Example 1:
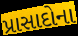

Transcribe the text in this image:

પ્રાસાદોના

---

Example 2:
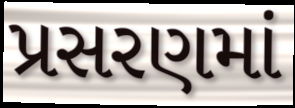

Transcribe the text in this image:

પ્રસરણમાં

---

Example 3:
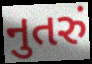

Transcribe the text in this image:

નુતરું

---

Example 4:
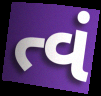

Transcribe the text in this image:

ત્વં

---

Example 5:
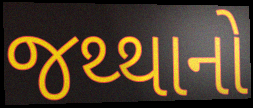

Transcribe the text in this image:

જથ્થાનો